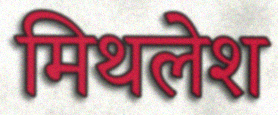
मिथलेश